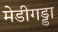
मेडीगड्डा